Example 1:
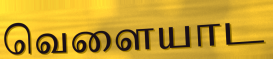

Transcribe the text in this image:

வெளையாட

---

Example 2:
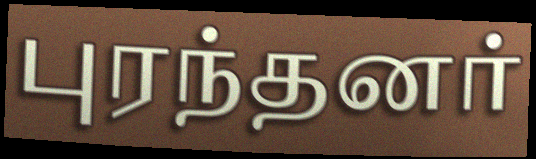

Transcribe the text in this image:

புரந்தனர்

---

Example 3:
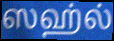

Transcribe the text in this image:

ஸஹ்ல்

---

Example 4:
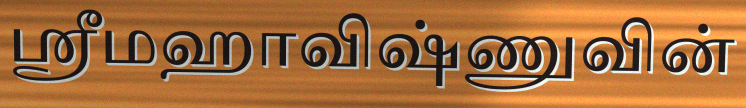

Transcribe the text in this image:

ஸ்ரீமஹாவிஷ்ணுவின்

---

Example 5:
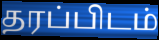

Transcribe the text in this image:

தரப்பிடம்